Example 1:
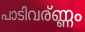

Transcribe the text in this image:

പാടിവര്ണ്ണം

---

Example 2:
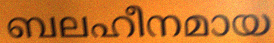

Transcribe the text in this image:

ബലഹീനമായ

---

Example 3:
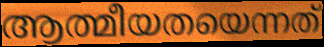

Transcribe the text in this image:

ആത്മീയതയെന്നത്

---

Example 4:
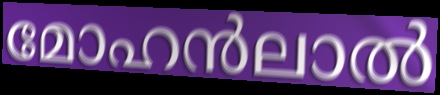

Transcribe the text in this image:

മോഹൻലാൽ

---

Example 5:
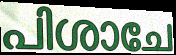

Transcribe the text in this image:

പിശാചേ